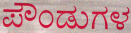
ಪೌಂಡುಗಳ